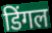
डिंगल